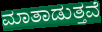
ಮಾತಾಡುತ್ತವೆ